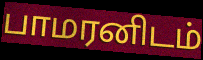
பாமரனிடம்